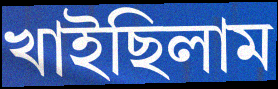
খাইছিলাম